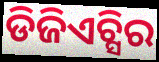
ଡିଜିଏଚ୍ସିର